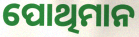
ପୋଥିମାନ